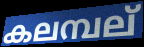
കലമ്പല്